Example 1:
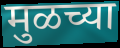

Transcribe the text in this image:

मुळच्या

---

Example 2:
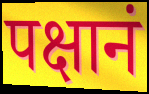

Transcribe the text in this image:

पक्षानं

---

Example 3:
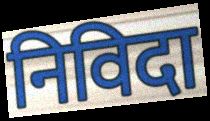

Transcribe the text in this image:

निविदा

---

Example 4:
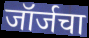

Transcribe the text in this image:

जॉर्जचा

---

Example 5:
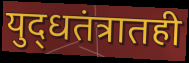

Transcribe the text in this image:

युद्धतंत्रातही